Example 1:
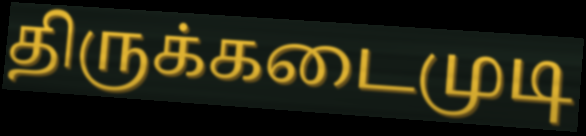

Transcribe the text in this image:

திருக்கடைமுடி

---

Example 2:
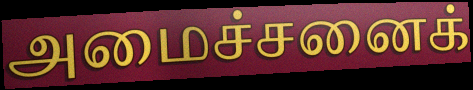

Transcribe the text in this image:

அமைச்சனைக்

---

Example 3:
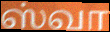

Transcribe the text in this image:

ஸ்வா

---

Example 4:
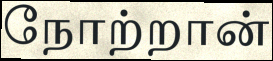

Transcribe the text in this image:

நோற்றான்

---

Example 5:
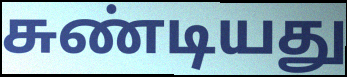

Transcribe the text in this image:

சுண்டியது